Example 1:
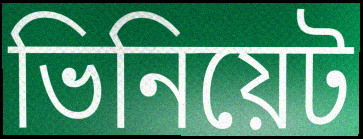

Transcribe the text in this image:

ভিনিয়েট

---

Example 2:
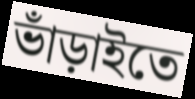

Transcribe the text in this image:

ভাঁড়াইতে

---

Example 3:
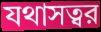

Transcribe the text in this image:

যথাসত্বর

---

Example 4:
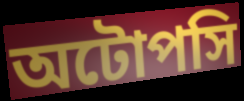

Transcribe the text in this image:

অটোপসি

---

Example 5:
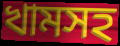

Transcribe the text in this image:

খামসহ